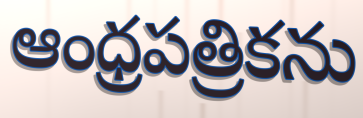
ఆంధ్రపత్రికను